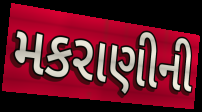
મકરાણીની